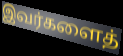
இவர்களைத்